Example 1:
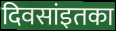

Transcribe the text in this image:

दिवसांइतका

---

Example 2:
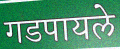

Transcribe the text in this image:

गडपायले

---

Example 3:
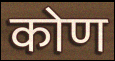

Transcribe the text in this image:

कोण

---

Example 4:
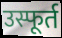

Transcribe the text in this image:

उस्फूर्त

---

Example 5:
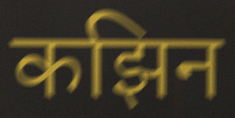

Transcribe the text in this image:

कझिन